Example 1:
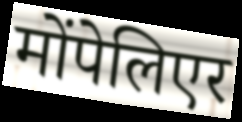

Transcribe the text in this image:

मोंपेलिएर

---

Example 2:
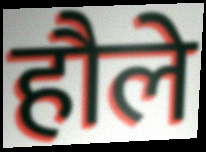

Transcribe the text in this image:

हौले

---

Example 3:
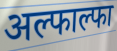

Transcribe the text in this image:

अल्फाल्फा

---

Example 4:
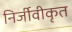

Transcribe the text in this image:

निर्जीवीकृत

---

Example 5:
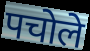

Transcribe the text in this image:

पचोले